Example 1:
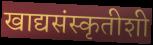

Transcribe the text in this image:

खाद्यसंस्कृतीशी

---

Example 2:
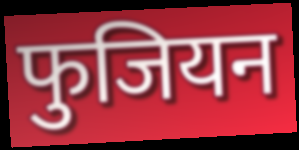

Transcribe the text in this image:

फुजियन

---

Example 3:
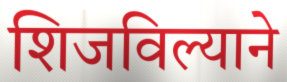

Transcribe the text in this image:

शिजविल्याने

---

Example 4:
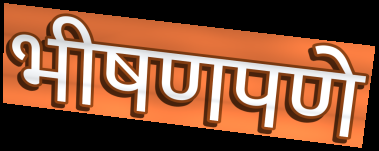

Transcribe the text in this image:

भीषणपणे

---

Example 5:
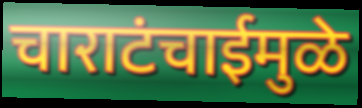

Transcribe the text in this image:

चाराटंचाईमुळे